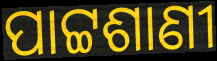
ପାଟ୍ଟଶାଣୀ